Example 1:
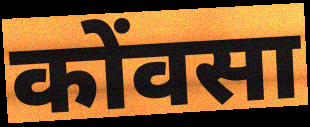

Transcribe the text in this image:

कोंवसा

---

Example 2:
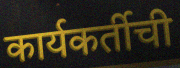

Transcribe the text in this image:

कार्यकर्तीची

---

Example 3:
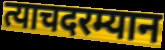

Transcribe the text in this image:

त्याचदरम्यान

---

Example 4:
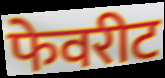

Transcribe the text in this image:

फेवरीट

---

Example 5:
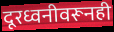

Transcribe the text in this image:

दूरध्वनीवरूनही